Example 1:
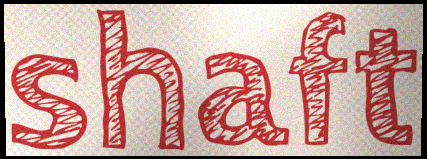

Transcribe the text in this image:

shaft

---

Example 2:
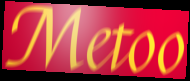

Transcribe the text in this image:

Metoo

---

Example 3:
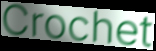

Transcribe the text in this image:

Crochet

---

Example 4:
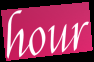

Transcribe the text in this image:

hour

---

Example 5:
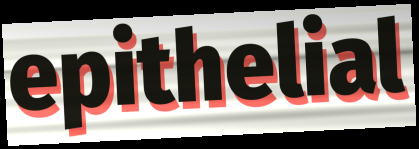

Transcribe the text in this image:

epithelial